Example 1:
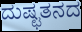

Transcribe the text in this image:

ದುಷ್ಟತನದ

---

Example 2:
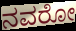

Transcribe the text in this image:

ನವರೋ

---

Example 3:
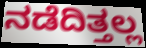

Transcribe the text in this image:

ನಡೆದಿತ್ತಲ್ಲ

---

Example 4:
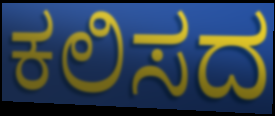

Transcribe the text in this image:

ಕಲಿಸದ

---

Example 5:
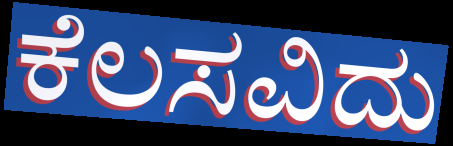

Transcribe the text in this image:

ಕೆಲಸವಿದು